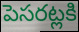
పెసరట్లకి